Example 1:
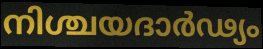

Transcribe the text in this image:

നിശ്ചയദാർഢ്യം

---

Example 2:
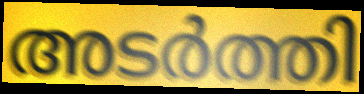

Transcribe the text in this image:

അടർത്തി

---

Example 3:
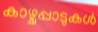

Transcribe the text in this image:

കാഴ്ചപ്പാടുകൾ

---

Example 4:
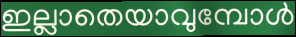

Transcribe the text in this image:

ഇല്ലാതെയാവുമ്പോൾ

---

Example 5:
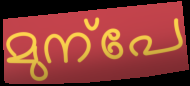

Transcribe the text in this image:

മുന്പേ